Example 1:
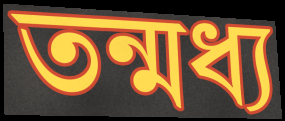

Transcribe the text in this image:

তন্মধ্য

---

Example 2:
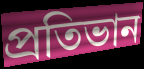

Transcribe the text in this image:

প্রতিভান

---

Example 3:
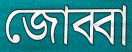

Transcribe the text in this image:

জোব্বা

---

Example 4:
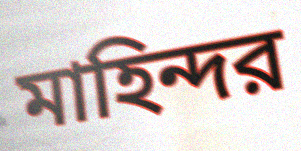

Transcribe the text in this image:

মাহিন্দর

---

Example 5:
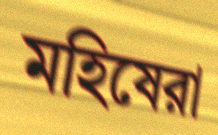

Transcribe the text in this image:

মহিষেরা